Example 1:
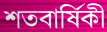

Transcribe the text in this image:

শতবাৰ্ষিকী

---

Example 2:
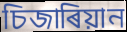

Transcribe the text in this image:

চিজাৰিয়ান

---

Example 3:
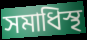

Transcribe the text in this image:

সমাধিস্থ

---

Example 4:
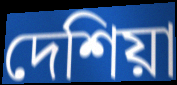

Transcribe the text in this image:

দেশিয়া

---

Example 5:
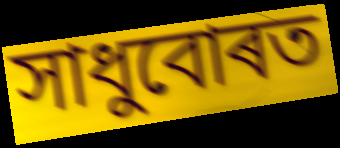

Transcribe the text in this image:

সাধুবোৰত